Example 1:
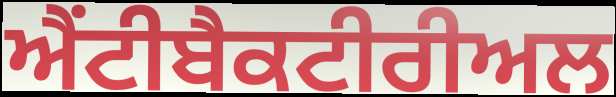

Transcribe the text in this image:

ਐਂਟੀਬੈਕਟੀਰੀਅਲ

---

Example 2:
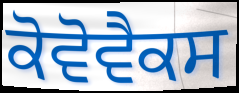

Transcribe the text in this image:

ਕੋਵੋਵੈਕਸ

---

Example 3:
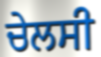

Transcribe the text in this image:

ਚੇਲਸੀ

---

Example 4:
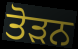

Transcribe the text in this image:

ਤੋੜਨ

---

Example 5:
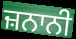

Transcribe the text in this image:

ਜ਼ਨਾਨੀ